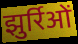
झुर्रिओं